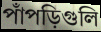
পাঁপড়িগুলি